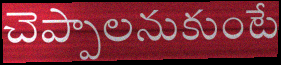
చెప్పాలనుకుంటే